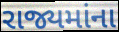
રાજ્યમાંના